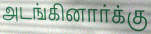
அடங்கினார்க்கு